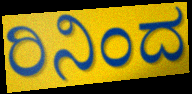
ರಿನಿಂದ